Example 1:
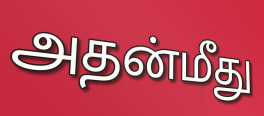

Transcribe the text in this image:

அதன்மீது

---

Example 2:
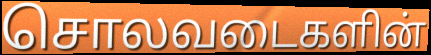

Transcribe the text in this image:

சொலவடைகளின்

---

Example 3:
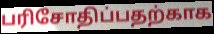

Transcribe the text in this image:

பரிசோதிப்பதற்காக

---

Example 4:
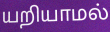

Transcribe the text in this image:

யறியாமல்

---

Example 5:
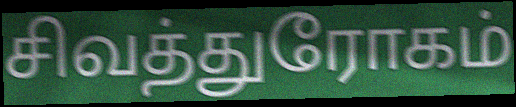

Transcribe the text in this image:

சிவத்துரோகம்